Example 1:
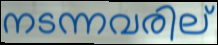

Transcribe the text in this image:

നടന്നവരില്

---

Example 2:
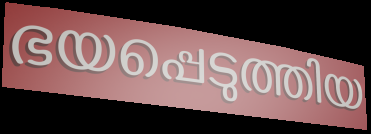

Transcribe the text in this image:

ഭയപ്പെടുത്തിയ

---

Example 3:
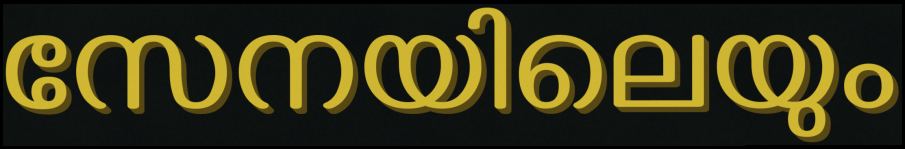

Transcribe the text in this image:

സേനയിലെയും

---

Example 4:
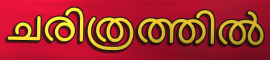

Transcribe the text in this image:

ചരിത്രത്തിൽ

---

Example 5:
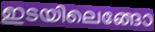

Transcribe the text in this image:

ഇടയിലെങ്ങോ